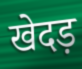
खेदड़